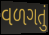
વળગતું